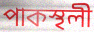
পাকস্থলী